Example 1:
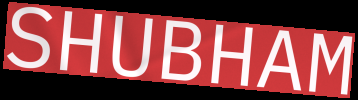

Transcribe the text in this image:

SHUBHAM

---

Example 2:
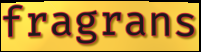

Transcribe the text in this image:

fragrans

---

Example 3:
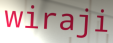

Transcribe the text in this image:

wiraji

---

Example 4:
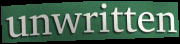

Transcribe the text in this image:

unwritten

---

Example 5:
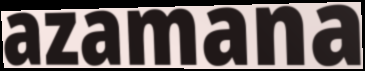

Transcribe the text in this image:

azamana